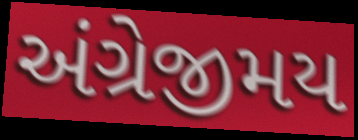
અંગ્રેજીમય